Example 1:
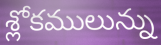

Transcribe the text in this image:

శ్లోకములున్ను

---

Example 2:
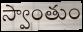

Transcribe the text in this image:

స్వాంతుం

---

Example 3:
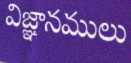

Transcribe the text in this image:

విజ్ఞానములు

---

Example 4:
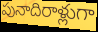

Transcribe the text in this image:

పునాదిరాళ్లుగా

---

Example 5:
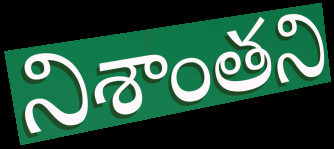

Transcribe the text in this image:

నిశాంతని